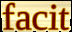
facit